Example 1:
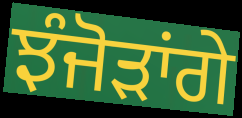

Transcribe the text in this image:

ਝੰਜੋੜਾਂਗੇ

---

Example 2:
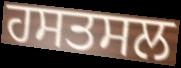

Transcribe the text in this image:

ਹਸਤਸਲ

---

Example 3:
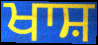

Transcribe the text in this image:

ਖਾਸ਼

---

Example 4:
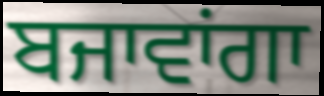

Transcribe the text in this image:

ਬਜਾਵਾਂਗਾ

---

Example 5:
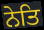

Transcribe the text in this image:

ਨੇਤਿ